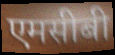
एमसीबी